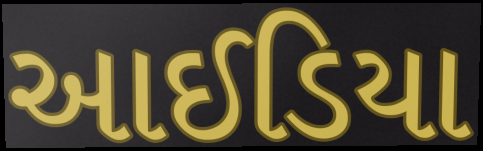
આઈડિયા